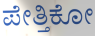
ಪೇತ್ತಿಕೋ